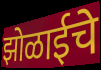
झोळाईचे